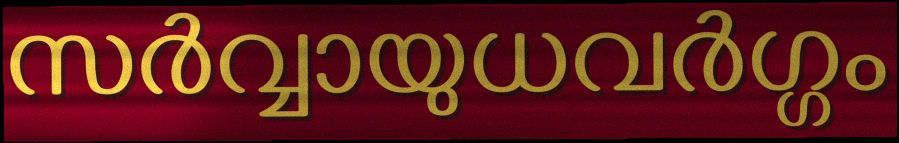
സർവ്വായുധവർഗ്ഗം